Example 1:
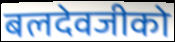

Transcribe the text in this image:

बलदेवजीको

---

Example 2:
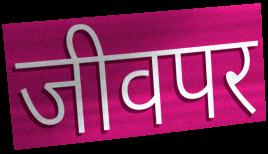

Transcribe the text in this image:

जीवपर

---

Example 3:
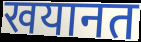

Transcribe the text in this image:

खयानत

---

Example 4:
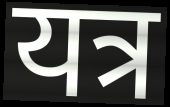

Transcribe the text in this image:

यत्र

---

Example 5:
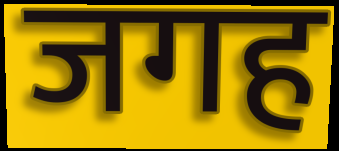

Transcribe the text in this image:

जगह